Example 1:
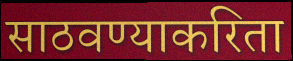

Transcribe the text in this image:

साठवण्याकरिता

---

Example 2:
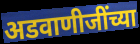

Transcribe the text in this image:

अडवाणीजींच्या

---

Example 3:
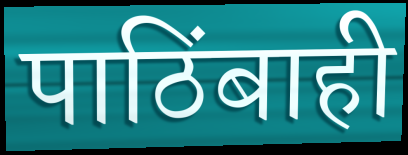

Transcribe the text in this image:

पाठिंबाही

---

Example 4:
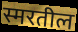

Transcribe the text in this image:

स्मरतील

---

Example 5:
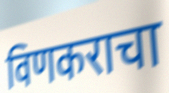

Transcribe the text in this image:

विणकराचा